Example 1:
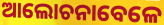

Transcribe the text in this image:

ଆଲୋଚନାବେଳେ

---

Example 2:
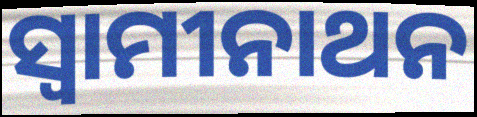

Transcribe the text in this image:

ସ୍ୱାମୀନାଥନ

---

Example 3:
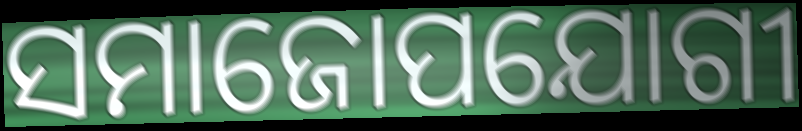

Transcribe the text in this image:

ସମାଜୋପଯୋଗୀ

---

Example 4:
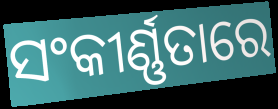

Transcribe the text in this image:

ସଂକୀର୍ଣ୍ଣତାରେ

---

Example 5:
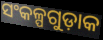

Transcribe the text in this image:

ସଂକଳ୍ପଗୁଡ଼ାକ